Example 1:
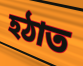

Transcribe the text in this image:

হঠাত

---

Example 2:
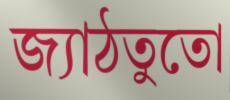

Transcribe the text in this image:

জ্যাঠতুতো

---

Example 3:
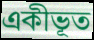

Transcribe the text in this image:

একীভূত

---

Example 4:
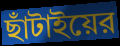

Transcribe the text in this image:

ছাঁটাইয়ের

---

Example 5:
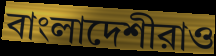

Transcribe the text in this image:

বাংলাদেশীরাও